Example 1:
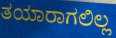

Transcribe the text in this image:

ತಯಾರಾಗಲಿಲ್ಲ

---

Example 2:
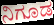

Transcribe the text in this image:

ನಿಗೂಡ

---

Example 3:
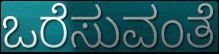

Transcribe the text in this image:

ಒರೆಸುವಂತೆ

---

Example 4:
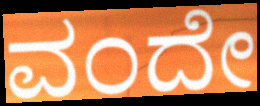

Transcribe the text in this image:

ವಂದೇ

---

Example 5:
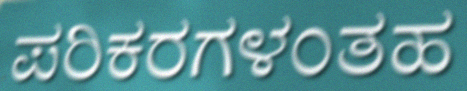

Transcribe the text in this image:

ಪರಿಕರಗಳಂತಹ